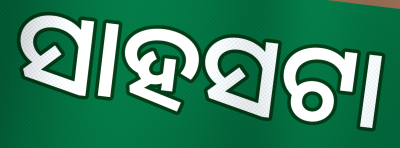
ସାହସଟା